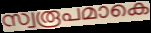
സ്വരൂപമാകെ